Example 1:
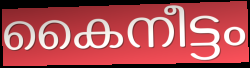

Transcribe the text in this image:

കൈനീട്ടം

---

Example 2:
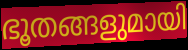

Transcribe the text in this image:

ഭൂതങ്ങളുമായി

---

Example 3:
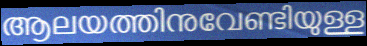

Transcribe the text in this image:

ആലയത്തിനുവേണ്ടിയുള്ള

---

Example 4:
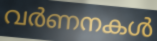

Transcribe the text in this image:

വർണനകൾ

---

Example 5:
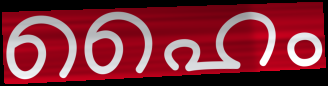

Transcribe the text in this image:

ഹൈം